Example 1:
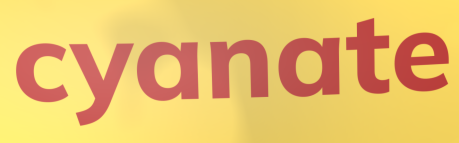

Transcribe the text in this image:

cyanate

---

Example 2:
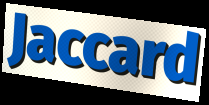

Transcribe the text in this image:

Jaccard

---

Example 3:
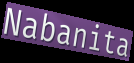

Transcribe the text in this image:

Nabanita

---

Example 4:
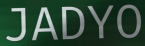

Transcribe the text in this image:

JADYO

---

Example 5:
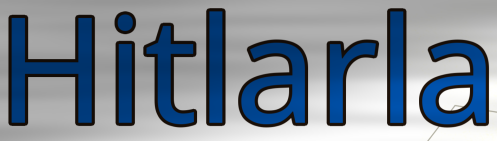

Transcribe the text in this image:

Hitlarla